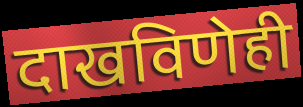
दाखविणेही